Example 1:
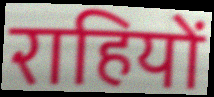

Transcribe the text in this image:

राहियों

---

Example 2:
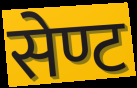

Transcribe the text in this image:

सेण्ट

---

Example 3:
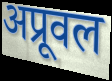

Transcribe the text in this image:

अप्रूवल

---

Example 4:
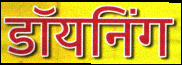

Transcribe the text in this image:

डॉयनिंग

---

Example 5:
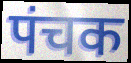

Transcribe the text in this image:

पंचक